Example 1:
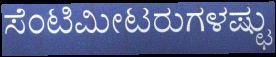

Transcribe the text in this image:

ಸೆಂಟಿಮೀಟರುಗಳಷ್ಟು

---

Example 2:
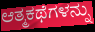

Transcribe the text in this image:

ಆತ್ಮಕಥೆಗಳನ್ನು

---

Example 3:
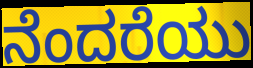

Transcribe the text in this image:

ನೆಂದರೆಯು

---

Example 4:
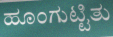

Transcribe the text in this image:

ಹೂಂಗುಟ್ಟಿತು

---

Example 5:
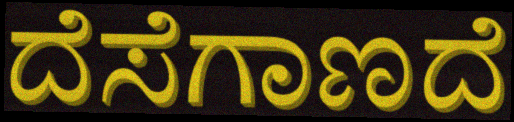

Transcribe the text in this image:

ದೆಸೆಗಾಣದೆ